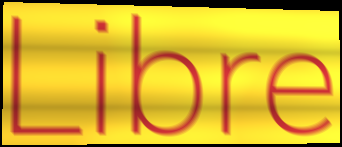
Libre